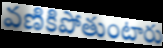
వణికిపోతుంటారు